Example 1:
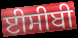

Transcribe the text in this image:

ਈਸੀਬੀ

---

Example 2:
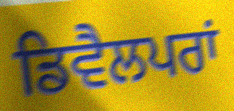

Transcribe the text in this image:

ਡਿਵੈਲਪਰਾਂ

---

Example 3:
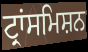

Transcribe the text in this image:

ਟ੍ਰਾਂਸਮਿਸ਼ਨ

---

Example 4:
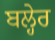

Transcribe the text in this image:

ਬਲ੍ਹੇਰ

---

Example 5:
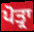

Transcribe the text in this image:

ਪੋਤ੍ਰਾ